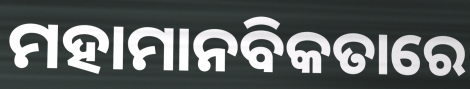
ମହାମାନବିକତାରେ